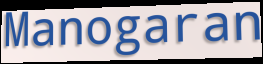
Manogaran